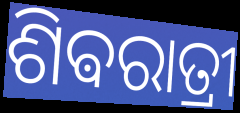
ଶିଵରାତ୍ରୀ